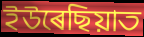
ইউৰেছিয়াত